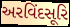
અરવિંદસૂરિ